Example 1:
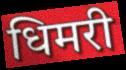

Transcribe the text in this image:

धिमरी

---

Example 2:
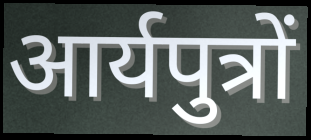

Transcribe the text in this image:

आर्यपुत्रों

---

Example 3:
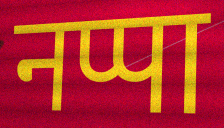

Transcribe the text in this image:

नप्पा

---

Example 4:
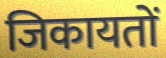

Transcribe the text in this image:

जिकायतों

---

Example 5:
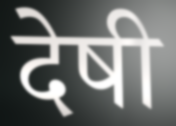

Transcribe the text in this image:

देषी